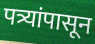
पत्र्यांपासून